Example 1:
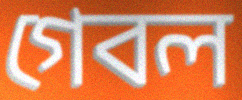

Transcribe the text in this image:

গেবল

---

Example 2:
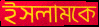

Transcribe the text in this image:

ইসলামকে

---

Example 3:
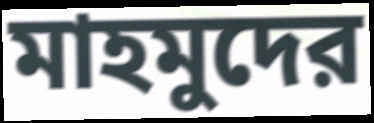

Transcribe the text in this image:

মাহমুদের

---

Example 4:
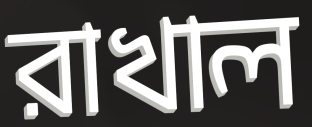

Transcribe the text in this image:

রাখাল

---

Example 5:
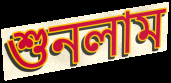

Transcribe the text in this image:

শুনলাম